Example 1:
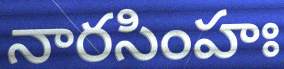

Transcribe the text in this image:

నారసింహః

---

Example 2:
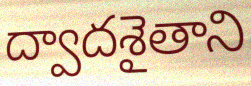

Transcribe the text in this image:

ద్వాదశైతాని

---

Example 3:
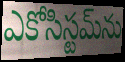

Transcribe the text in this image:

ఎకోసిస్టమ్‌ను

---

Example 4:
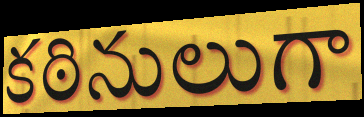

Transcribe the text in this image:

కఠినులుగా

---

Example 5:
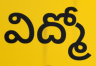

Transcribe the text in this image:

విద్మో